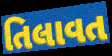
તિલાવત